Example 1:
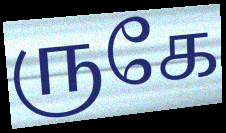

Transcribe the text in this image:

ருகே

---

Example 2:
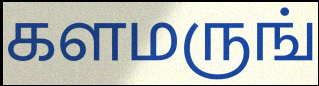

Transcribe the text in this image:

களமருங்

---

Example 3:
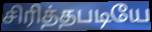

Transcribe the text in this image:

சிரித்தபடியே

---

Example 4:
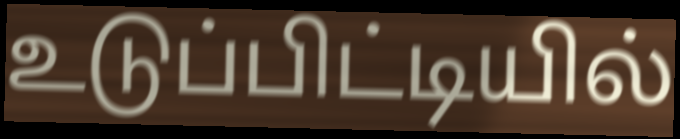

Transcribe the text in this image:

உடுப்பிட்டியில்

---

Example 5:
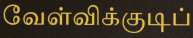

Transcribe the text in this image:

வேள்விக்குடிப்